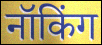
नॉकिंग